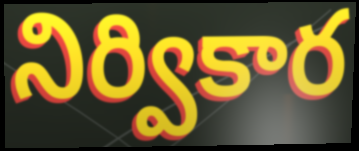
నిర్వికార